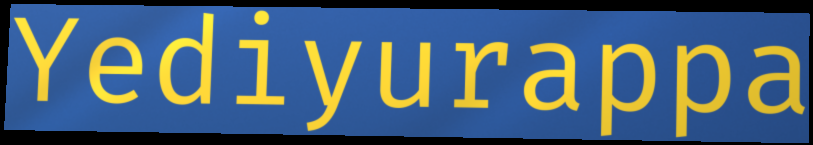
Yediyurappa